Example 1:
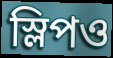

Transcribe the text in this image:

স্লিপও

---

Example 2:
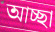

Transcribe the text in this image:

আচ্ছা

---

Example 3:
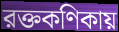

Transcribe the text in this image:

রক্তকণিকায়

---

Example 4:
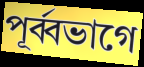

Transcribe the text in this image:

পূর্ব্বভাগে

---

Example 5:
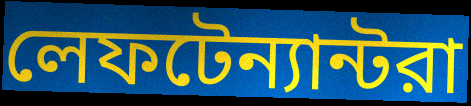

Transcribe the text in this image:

লেফটেন্যান্টরা